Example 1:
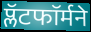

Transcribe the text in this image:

प्लॅटफॉर्मने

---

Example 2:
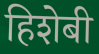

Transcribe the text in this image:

हिशेबी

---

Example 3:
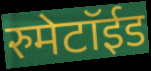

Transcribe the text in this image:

रुमेटॉईड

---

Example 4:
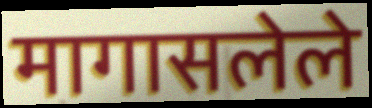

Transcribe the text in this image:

मागासलेले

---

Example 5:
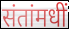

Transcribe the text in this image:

संतांमधीं